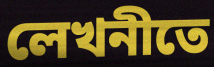
লেখনীতে